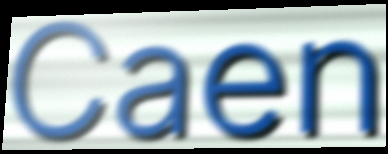
Caen